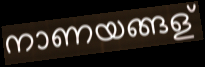
നാണയങ്ങള്